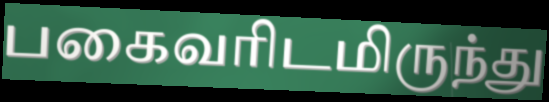
பகைவரிடமிருந்து